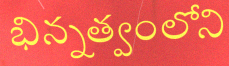
భిన్నత్వంలోని